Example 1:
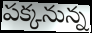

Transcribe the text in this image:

పక్కనున్న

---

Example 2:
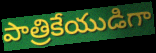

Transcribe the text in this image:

పాత్రికేయుడిగా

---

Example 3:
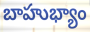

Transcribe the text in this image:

బాహుభ్యాం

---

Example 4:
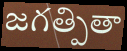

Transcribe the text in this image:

జగత్పితా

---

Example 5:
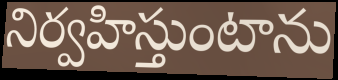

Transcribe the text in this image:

నిర్వహిస్తుంటాను